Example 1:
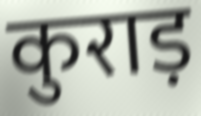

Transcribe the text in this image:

कुराड़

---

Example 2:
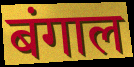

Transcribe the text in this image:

बंगाल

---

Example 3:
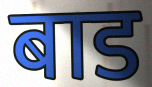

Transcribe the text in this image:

बाड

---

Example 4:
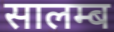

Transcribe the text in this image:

सालम्ब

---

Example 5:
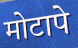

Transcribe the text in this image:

मोटापे